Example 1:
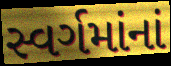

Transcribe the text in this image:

સ્વર્ગમાંનાં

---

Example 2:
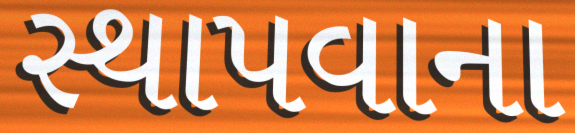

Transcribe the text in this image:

સ્થાપવાના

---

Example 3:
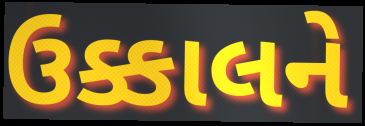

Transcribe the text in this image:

ઉક્કાલને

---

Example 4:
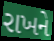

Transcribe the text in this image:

રાખને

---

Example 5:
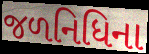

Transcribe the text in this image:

જળનિધિના